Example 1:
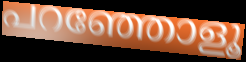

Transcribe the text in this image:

പറഞ്ഞോളൂ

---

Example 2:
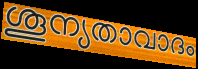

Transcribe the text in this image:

ശൂന്യതാവാദം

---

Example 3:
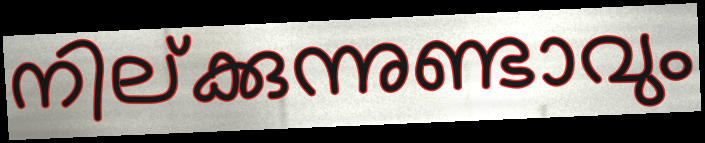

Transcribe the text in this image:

നില്ക്കുന്നുണ്ടാവും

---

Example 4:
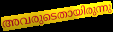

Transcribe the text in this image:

അവരുടെതായിരുന്നു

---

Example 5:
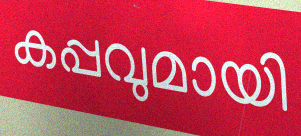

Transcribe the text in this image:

കപ്പവുമായി